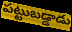
పట్టుబడ్డాడు